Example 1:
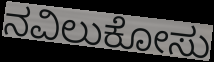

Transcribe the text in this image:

ನವಿಲುಕೋಸು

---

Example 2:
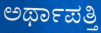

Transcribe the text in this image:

ಅರ್ಥಾಪತ್ತಿ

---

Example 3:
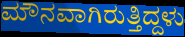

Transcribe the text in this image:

ಮೌನವಾಗಿರುತ್ತಿದ್ದಳು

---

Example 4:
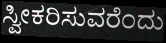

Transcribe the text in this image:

ಸ್ವೀಕರಿಸುವರೆಂದು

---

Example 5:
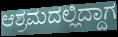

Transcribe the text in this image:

ಆಶ್ರಮದಲ್ಲಿದ್ದಾಗ